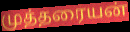
முத்தரையன்